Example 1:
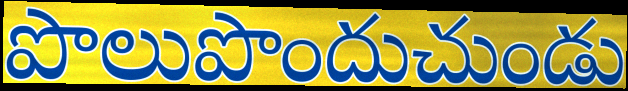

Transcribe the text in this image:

పొలుపొందుచుండు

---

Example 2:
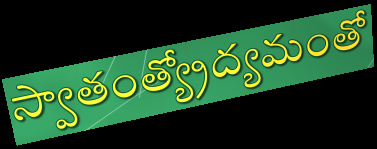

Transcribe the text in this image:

స్వాతంత్య్రోద్యమంతో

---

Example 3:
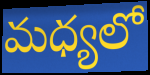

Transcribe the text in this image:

మధ్యలో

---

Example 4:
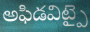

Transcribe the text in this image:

అఫిడవిట్పై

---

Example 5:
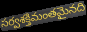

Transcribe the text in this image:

సర్వశక్తిమంతమైనది